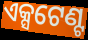
ଏକ୍ସଟେଣ୍ଟ